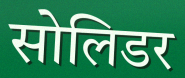
सोलिडर